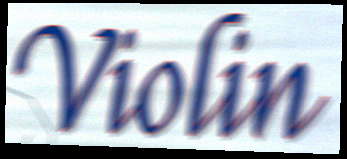
Violin